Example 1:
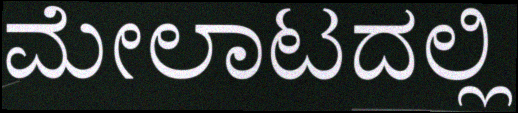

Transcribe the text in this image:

ಮೇಲಾಟದಲ್ಲಿ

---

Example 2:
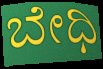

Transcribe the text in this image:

ಬೇಧಿ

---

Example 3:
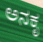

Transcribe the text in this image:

ಅನಕೃ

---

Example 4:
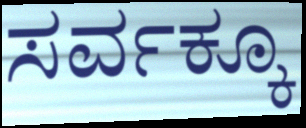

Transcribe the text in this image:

ಸರ್ವಕ್ಕೂ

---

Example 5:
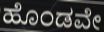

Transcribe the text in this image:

ಹೊಂಡವೇ